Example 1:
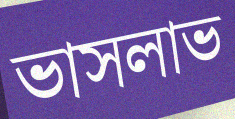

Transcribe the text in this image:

ভাসলাভ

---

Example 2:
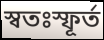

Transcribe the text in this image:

স্বতঃস্ফূর্ত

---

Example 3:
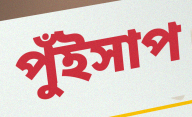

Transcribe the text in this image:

পুঁইসাপ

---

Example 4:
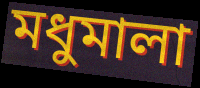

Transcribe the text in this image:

মধুমালা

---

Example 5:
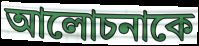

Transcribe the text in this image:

আলোচনাকে